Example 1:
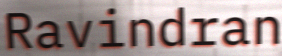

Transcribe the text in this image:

Ravindran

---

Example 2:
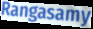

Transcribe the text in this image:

Rangasamy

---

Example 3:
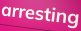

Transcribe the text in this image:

arresting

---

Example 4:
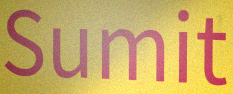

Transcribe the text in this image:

Sumit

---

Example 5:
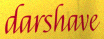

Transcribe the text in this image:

darshave